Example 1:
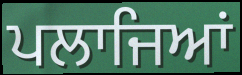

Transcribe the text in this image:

ਪਲਾਜਿਆਂ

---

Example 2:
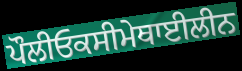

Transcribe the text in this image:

ਪੌਲੀਓਕਸੀਮੇਥਾਈਲੀਨ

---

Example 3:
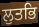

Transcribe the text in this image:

ਲੁਤਭਿ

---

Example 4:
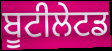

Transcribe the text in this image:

ਬੂਟੀਲੇਟਡ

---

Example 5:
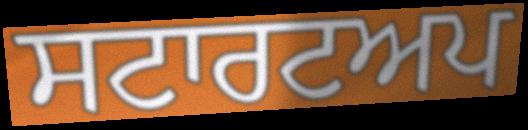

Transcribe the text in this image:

ਸਟਾਰਟਅਪ